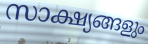
സാക്ഷ്യങ്ങളും